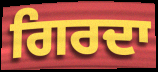
ਗਿਰਦਾ